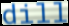
dill